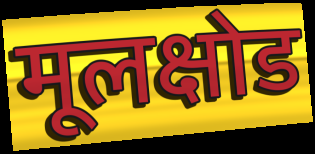
मूलक्षोड